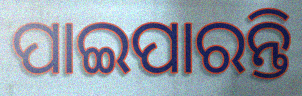
ପାଇପାରନ୍ତି